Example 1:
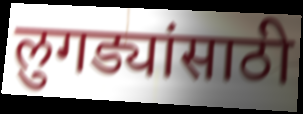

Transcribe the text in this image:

लुगड्यांसाठी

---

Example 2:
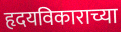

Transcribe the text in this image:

हृदयविकाराच्या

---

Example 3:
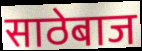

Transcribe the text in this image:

साठेबाज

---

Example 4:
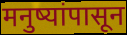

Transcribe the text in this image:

मनुष्यांपासून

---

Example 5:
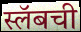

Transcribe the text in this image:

स्लॅबची